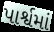
પાર્શ્વમાં